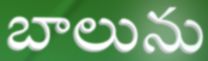
బాలును